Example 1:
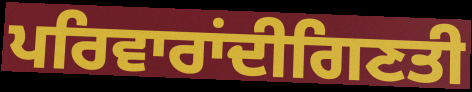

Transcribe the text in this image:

ਪਰਿਵਾਰਾਂਦੀਗਿਣਤੀ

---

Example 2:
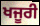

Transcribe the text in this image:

ਖਜੂਰੀ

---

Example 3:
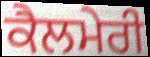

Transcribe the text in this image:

ਕੈਲਮੇਰੀ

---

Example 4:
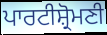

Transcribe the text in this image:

ਪਾਰਟੀਸ਼੍ਰੋਮਣੀ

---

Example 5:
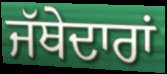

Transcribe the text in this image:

ਜੱਥੇਦਾਰਾਂ